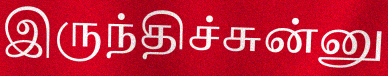
இருந்திச்சுன்னு